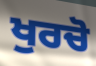
ਖੁਰਚੋ